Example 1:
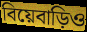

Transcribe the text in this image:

বিয়েবাড়িও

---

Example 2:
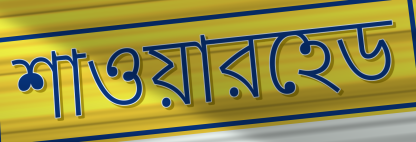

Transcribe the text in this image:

শাওয়ারহেড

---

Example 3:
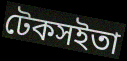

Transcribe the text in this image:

টেকসইতা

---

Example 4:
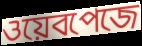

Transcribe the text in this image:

ওয়েবপেজে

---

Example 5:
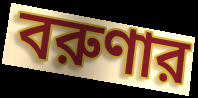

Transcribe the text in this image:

বরুণার